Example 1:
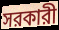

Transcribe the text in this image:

সরকারী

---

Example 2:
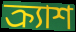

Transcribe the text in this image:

ক্র্যাশ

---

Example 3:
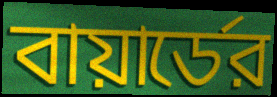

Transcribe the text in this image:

বায়ার্ডের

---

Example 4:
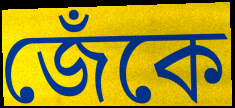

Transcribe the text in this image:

জেঁকে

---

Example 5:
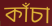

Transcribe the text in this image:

কাঁচা